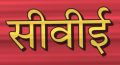
सीवीई